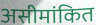
असीमांकित